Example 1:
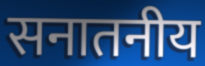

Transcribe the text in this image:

सनातनीय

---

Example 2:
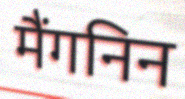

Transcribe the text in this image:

मैंगनिन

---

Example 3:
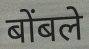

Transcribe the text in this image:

बोंबले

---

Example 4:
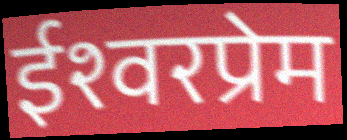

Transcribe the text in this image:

ईश्वरप्रेम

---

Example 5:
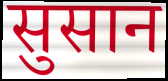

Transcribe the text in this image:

सुसान